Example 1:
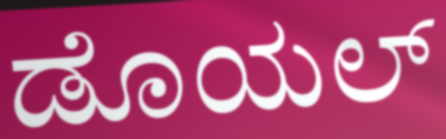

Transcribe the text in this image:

ಡೊಯಲ್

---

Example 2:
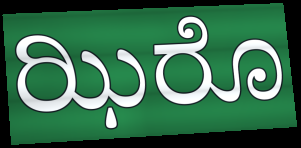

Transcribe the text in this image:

ಝಿರೊ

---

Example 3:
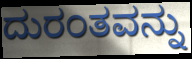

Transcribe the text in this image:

ದುರಂತವನ್ನು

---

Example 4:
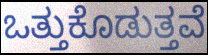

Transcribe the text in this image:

ಒತ್ತುಕೊಡುತ್ತವೆ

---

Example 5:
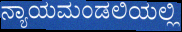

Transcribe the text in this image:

ನ್ಯಾಯಮಂಡಲಿಯಲ್ಲಿ